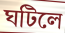
ঘটিলে